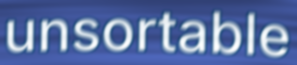
unsortable